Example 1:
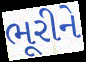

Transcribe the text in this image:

ભૂરીને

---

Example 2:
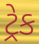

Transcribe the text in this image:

ટ્રેક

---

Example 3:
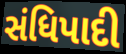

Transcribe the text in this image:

સંધિપાદી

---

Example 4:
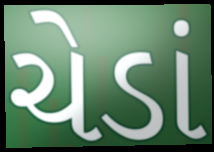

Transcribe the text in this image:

ચેડાં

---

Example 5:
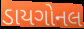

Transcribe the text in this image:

ડાયગોનલ